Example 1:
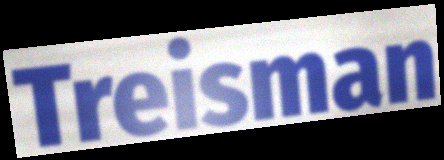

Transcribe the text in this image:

Treisman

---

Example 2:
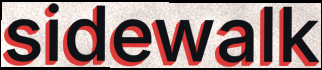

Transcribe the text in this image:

sidewalk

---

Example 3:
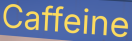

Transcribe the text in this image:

Caffeine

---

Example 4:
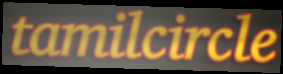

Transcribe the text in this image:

tamilcircle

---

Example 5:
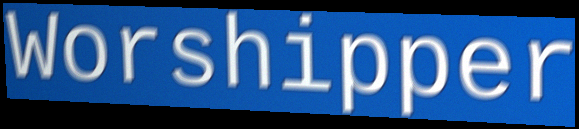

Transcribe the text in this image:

Worshipper